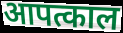
आपत्काल